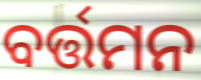
ବର୍ତ୍ତମନ